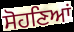
ਸੋਹਣਿਆਂ